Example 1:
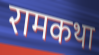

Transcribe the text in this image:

रामकथा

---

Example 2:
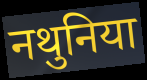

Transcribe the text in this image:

नथुनिया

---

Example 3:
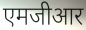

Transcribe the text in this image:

एमजीआर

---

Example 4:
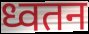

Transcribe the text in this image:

ध्वतन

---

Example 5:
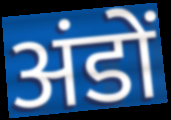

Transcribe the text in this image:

अंडों